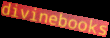
divinebooks